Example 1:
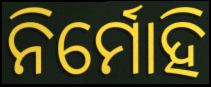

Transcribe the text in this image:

ନିର୍ମୋହି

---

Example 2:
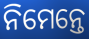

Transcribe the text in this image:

ନିମେନ୍ତେ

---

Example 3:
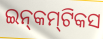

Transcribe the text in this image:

ଇନ୍‍କମ୍‍ଟିକସ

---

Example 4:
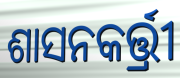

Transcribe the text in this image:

ଶାସନକର୍ତ୍ତ୍ରୀ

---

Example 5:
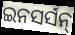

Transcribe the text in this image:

ଇନସର୍ସନ୍